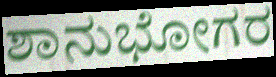
ಶಾನುಭೋಗರ